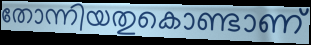
തോന്നിയതുകൊണ്ടാണ്